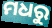
ମଧରୁ